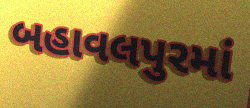
બહાવલપુરમાં